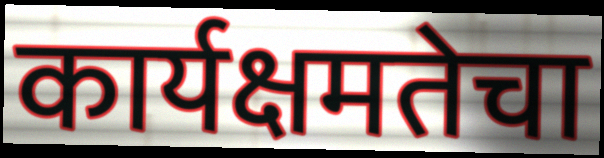
कार्यक्षमतेचा